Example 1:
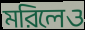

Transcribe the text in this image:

মরিলেও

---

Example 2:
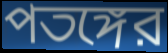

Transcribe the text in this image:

পতঙ্গের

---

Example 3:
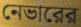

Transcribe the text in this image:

নেভারের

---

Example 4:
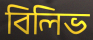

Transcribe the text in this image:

বিলিভ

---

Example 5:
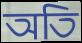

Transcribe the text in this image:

অতি